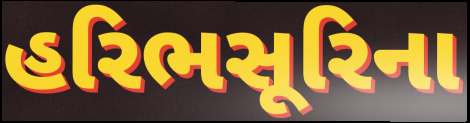
હરિભસૂરિના